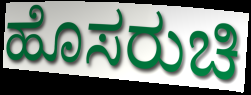
ಹೊಸರುಚಿ